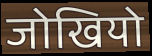
जोखियो